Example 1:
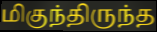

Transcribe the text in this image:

மிகுந்திருந்த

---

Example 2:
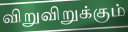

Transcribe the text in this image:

விறுவிறுக்கும்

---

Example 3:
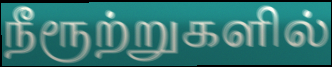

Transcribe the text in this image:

நீரூற்றுகளில்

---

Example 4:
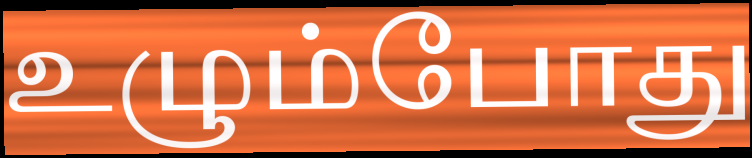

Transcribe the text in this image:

உழும்போது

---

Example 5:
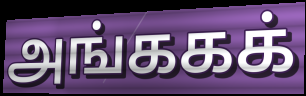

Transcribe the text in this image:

அங்ககக்